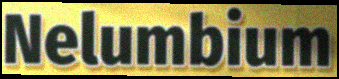
Nelumbium